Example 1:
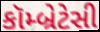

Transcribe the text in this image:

કૉમ્બ્રેટેસી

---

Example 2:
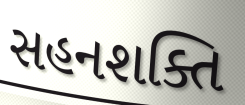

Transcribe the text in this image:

સહનશક્તિ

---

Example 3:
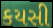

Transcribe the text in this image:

કયસી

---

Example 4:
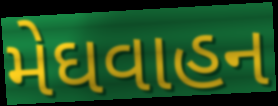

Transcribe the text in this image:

મેઘવાહન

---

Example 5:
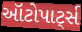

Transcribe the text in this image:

ઑટોપાર્ટ્સ